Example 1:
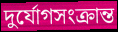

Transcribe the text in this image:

দুর্যোগসংক্রান্ত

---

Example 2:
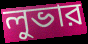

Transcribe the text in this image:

লুভার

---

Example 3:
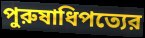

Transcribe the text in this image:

পুরুষাধিপত্যের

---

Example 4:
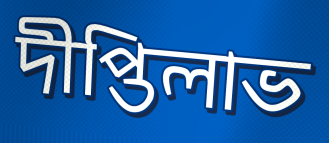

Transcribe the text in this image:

দীপ্তিলাভ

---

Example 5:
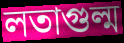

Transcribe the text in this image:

লতাগুল্ম